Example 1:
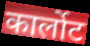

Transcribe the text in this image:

कार्लोट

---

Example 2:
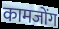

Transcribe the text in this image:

कामजोंग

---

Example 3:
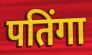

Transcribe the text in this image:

पतिंगा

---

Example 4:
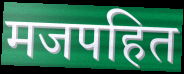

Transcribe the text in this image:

मजपहित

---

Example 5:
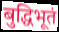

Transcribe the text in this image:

बुद्धिभूतं